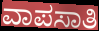
ವಾಪಸಾತಿ